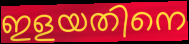
ഇളയതിനെ